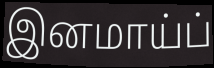
இனமாய்ப்